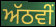
ਅੱਠਵੀਂ